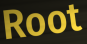
Root